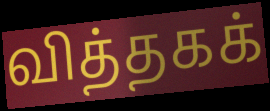
வித்தகக்